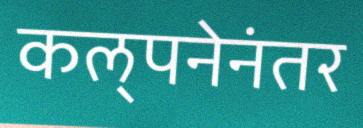
कल्पनेनंतर